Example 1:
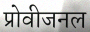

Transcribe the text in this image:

प्रोवीजनल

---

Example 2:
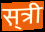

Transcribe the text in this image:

स़्त्री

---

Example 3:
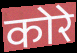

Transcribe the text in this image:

कोरे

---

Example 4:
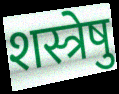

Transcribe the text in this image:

शस्त्रेषु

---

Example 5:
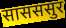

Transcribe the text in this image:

सासससुर